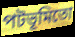
পটভূমিতো